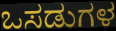
ಒಸಡುಗಳ